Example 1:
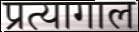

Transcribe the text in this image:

प्रत्यागाल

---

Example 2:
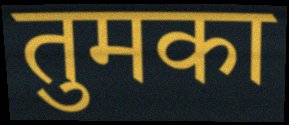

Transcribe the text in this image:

तुमका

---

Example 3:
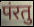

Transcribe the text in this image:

पंरतु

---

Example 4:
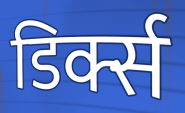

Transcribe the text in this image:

डिर्क्स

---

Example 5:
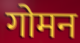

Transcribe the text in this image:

गोमन